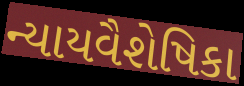
ન્યાયવૈશેષિકા